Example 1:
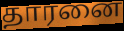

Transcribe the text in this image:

தாரனை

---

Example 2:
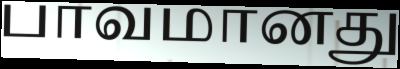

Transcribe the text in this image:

பாவமானது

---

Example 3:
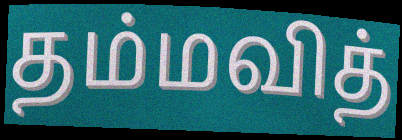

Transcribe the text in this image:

தம்மவித்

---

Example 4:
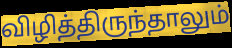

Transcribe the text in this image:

விழித்திருந்தாலும்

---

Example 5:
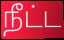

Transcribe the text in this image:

நீட்ட